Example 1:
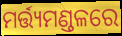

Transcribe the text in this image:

ମର୍ତ୍ତ୍ୟମଣ୍ଡଳରେ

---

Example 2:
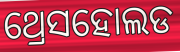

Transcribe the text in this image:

ଥ୍ରେସହୋଲଡ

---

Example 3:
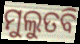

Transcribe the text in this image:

ମୁଲୁତବି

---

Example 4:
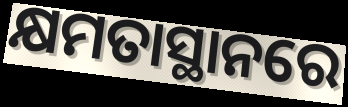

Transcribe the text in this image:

କ୍ଷମତାସ୍ଥାନରେ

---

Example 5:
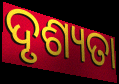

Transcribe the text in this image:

ଦୃଶ୍ୟତା